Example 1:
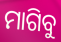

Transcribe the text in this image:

ମାଗିବୁ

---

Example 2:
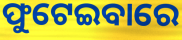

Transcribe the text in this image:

ଫୁଟେଇବାରେ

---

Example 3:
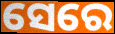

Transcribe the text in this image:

ସେରେ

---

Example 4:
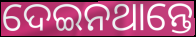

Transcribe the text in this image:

ଦେଇନଥାନ୍ତେ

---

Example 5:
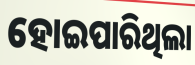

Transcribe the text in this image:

ହୋଇପାରିଥିଲା